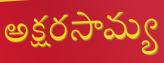
అక్షరసామ్య